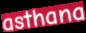
asthana